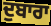
ਦੁਬਾਰਾ